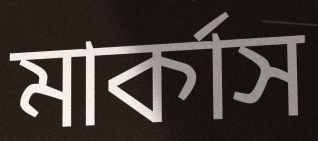
মার্কাস